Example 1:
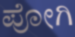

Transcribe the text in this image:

ಪೋಗಿ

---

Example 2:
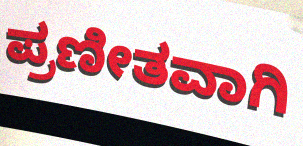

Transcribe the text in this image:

ಪ್ರಣೀತವಾಗಿ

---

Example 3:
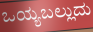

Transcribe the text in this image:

ಒಯ್ಯಬಲ್ಲುದು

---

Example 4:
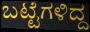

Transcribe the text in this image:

ಬಟ್ಟೆಗಳಿದ್ದ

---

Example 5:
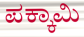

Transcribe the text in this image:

ಪಕ್ಕಾಮಿ